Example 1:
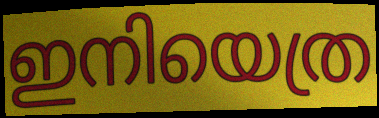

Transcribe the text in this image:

ഇനിയെത്ര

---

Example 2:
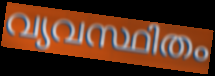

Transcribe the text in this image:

വ്യവസ്ഥിതം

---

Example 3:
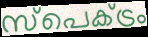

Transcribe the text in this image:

സ്പെക്ട്രം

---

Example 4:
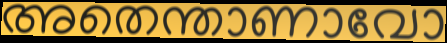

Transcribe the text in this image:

അതെന്താണാവോ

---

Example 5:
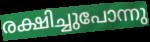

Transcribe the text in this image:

രക്ഷിച്ചുപോന്നു